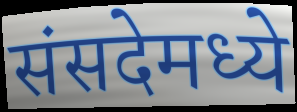
संसदेमध्ये